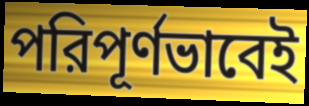
পরিপূর্ণভাবেই